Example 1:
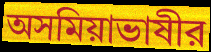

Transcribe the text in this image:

অসমিয়াভাষীর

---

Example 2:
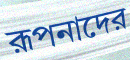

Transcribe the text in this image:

রূপনাদের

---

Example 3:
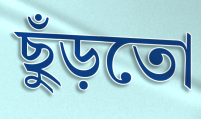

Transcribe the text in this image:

ছুঁড়তো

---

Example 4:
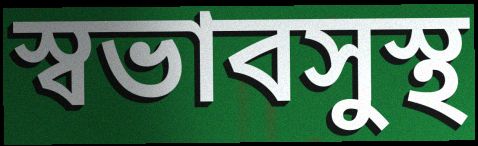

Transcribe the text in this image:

স্বভাবসুস্থ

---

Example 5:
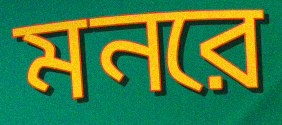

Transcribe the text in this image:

মনরে